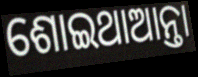
ଶୋଇଥାଆନ୍ତା